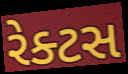
રેક્ટસ